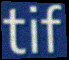
tif